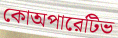
কোঅপারেটিভ